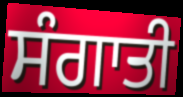
ਸੰਗਾਤੀ